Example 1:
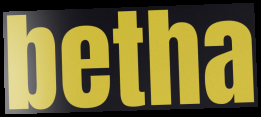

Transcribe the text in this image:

betha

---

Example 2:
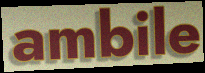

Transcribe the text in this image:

ambile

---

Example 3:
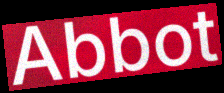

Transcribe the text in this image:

Abbot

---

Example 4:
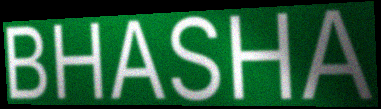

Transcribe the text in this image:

BHASHA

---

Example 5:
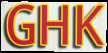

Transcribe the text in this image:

GHK